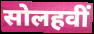
सोलहवीं